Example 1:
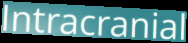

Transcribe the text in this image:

Intracranial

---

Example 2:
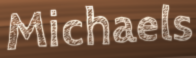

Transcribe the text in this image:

Michaels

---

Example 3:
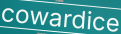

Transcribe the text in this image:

cowardice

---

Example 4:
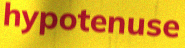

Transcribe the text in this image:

hypotenuse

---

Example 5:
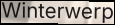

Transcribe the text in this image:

Winterwerp